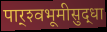
पार्श्वभूमीसुद्धा